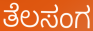
ತೆಲಸಂಗ